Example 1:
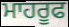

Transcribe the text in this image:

ਮਾਹਰੂਫ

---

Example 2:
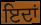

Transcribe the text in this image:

ਇਦਾਂ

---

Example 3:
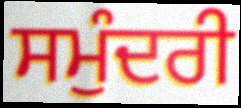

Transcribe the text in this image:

ਸਮੁੰਦਰੀ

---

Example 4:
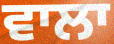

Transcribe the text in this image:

ਵਾਲਾ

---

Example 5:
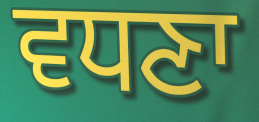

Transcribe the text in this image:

ਵਧਣਾ